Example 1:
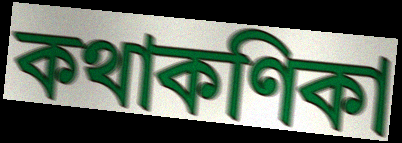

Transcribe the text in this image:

কথাকণিকা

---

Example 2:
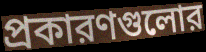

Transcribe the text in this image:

প্রকারণগুলোর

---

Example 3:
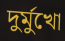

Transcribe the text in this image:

দুর্মুখো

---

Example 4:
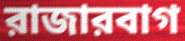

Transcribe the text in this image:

রাজারবাগ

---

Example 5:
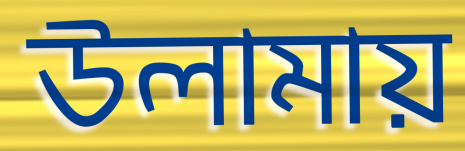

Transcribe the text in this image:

উলামায়